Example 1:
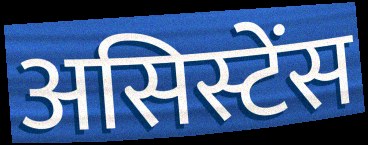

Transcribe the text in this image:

असिस्टेंस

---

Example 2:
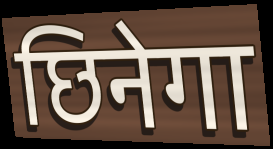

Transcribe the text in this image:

छिनेगा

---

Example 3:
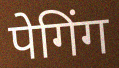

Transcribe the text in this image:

पेगिंग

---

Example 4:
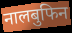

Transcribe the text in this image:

नालबुफिन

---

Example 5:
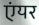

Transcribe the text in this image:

एंयर